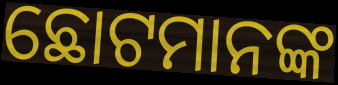
ଛୋଟମାନଙ୍କ